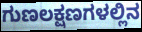
ಗುಣಲಕ್ಷಣಗಳಲ್ಲಿನ